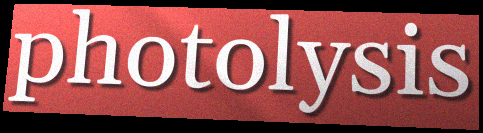
photolysis